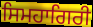
ਸਿਮਹਾਗਿਰੀ